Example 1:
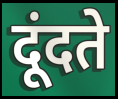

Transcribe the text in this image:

दूंदते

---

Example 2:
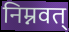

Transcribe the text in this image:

निम्नवत्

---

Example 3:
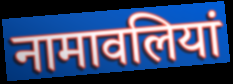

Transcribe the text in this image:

नामावलियां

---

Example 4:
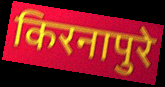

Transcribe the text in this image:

किरनापुरे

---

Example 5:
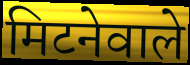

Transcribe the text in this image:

मिटनेवाले